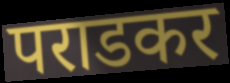
पराडकर